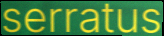
serratus